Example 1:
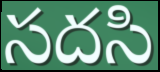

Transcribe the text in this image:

సదసి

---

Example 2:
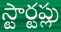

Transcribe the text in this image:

స్టార్టప్లు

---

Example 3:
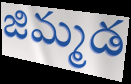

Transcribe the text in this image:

జిమ్మడ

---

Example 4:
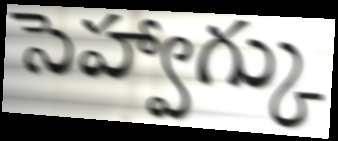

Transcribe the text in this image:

సెహ్వాగ్కు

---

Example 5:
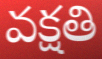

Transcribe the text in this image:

వక్షతి